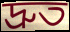
দ্ৰুত